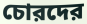
চোরদের